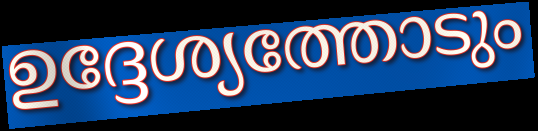
ഉദ്ദേശ്യത്തോടും